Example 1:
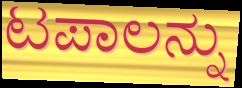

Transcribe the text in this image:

ಟಪಾಲನ್ನು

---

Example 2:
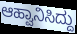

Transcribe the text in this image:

ಆಹ್ವಾನಿಸಿದ್ದು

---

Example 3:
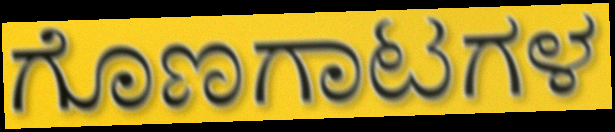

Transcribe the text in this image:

ಗೊಣಗಾಟಗಳ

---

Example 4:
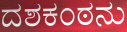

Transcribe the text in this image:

ದಶಕಂಠನು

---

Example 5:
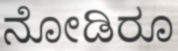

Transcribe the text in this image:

ನೋಡಿರೂ